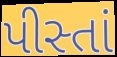
પીસ્તાં